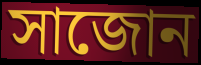
সাজোন